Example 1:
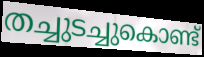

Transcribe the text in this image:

തച്ചുടച്ചുകൊണ്ട്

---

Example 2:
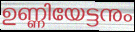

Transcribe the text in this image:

ഉണ്ണിയേട്ടനും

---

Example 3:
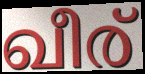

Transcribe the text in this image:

ഖീര്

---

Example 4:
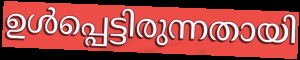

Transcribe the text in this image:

ഉൾപ്പെട്ടിരുന്നതായി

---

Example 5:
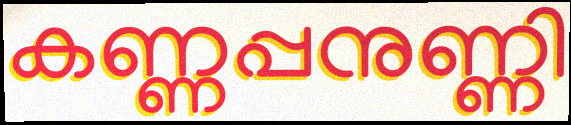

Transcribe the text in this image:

കണ്ണപ്പനുണ്ണി